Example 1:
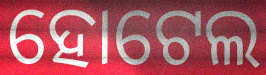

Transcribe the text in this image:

ହୋଟେଲ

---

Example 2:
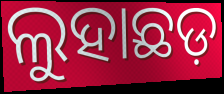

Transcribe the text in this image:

ଲୁହାଛଡ଼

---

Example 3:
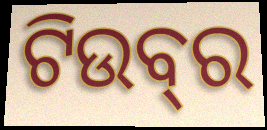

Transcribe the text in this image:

ଟିଉବ୍‍ର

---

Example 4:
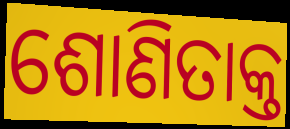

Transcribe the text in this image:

ଶୋଣିତାକ୍ତ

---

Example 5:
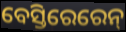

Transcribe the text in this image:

ବେସ୍ତିରେରେନ୍